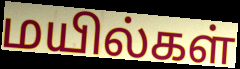
மயில்கள்